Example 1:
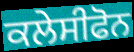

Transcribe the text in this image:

ਕਲੇਸੀਫੋਨ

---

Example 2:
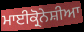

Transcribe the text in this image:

ਮਾਈਕ੍ਰੋਨੇਸ਼ੀਆ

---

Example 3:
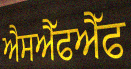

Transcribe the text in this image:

ਐਸਐੱਫਐੱਫ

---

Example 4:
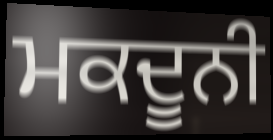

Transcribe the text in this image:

ਮਕਦੂਨੀ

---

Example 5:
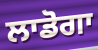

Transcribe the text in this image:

ਲਾਡੋਗਾ